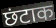
छंटाक